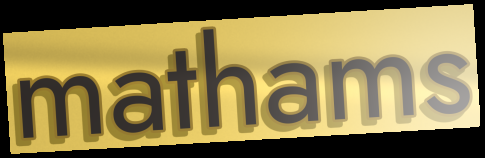
mathams